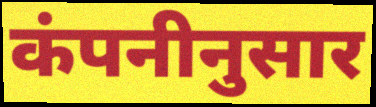
कंपनीनुसार